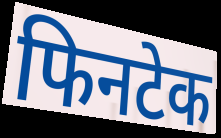
फिनटेक